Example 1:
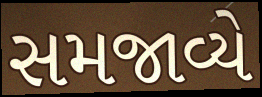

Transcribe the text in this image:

સમજાવ્યે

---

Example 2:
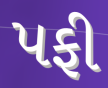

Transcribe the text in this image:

પફી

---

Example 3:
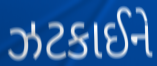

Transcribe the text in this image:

ઝટકાઈને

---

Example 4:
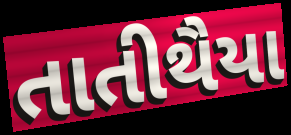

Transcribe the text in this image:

તાતીથૈયા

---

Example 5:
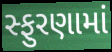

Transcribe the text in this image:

સ્ફુરણામાં